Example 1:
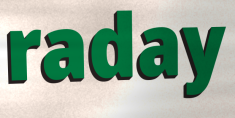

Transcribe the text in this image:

raday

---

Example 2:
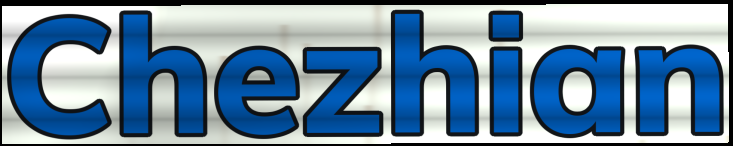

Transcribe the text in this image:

Chezhian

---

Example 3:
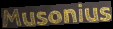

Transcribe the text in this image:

Musonius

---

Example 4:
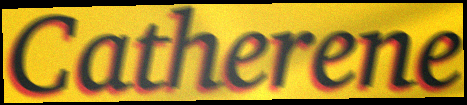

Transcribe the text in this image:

Catherene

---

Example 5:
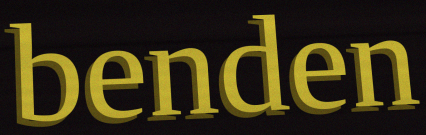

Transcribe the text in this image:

benden